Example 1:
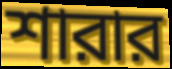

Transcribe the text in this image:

শারার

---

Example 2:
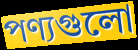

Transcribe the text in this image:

পণ্যগুলো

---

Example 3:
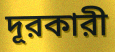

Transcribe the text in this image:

দূরকারী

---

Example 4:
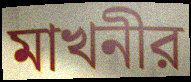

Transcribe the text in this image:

মাখনীর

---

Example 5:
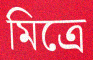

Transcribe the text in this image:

মিত্রে